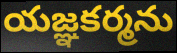
యజ్ఞకర్మను